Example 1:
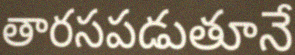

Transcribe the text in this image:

తారసపడుతూనే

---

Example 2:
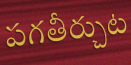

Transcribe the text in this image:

పగతీర్చుట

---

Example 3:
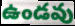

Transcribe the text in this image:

ఉండవు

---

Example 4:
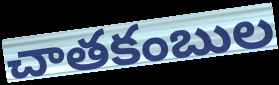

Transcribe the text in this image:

చాతకంబుల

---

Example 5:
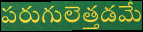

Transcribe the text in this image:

పరుగులెత్తడమే